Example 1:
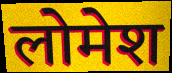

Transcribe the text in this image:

लोमेश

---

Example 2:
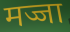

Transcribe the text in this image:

मज्जा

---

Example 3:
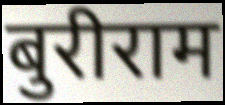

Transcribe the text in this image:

बुरीराम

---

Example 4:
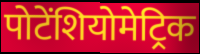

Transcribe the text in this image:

पोटेंशियोमेट्रिक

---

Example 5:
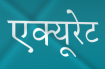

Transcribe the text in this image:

एक्यूरेट